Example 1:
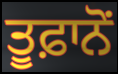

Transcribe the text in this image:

ਤੂਫ਼ਾਨੋਂ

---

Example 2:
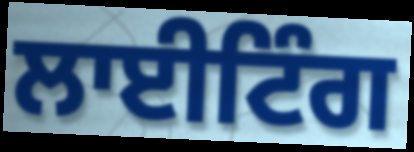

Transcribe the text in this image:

ਲਾਈਟਿੰਗ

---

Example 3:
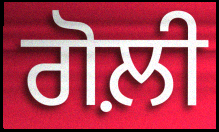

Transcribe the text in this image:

ਗੋਲ਼ੀ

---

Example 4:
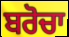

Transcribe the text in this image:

ਬਰੋਚਾ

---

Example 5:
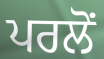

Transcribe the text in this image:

ਪਰਲੋਂ